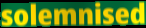
solemnised